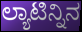
ಲ್ಯಾಟಿನ್ನಿನ